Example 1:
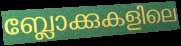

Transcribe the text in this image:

ബ്ലോക്കുകളിലെ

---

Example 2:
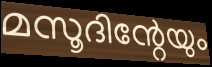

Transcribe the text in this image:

മസൂദിന്റേയും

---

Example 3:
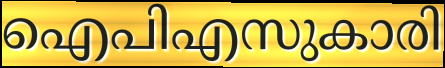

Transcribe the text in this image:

ഐപിഎസുകാരി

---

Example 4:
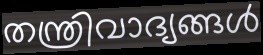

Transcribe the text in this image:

തന്ത്രിവാദ്യങ്ങൾ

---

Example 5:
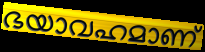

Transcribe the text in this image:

ഭയാവഹമാണ്